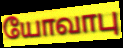
யோவாபு